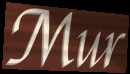
Mur